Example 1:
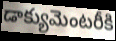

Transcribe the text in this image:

డాక్యుమెంటరీకి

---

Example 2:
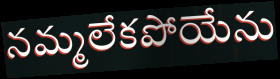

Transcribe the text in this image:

నమ్మలేకపోయేను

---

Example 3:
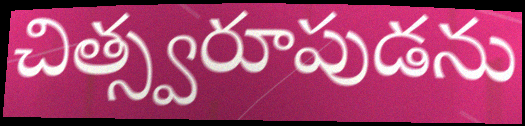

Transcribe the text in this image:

చిత్స్వరూపుడను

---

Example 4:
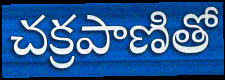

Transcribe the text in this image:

చక్రపాణితో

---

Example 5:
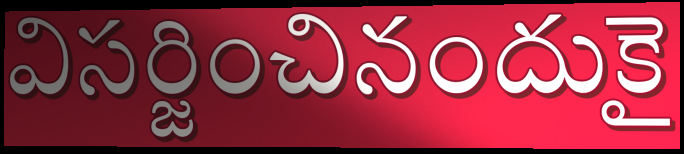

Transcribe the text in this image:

విసర్జించినందుకై